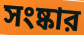
সংষ্কার